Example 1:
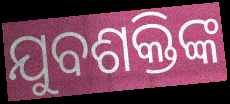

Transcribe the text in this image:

ଯୁବଶକ୍ତିଙ୍କ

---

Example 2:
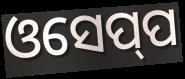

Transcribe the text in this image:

ଓସେପ୍‍ପ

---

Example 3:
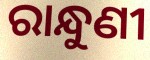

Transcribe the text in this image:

ରାନ୍ଧୁଣୀ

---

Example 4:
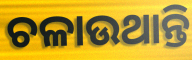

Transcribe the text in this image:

ଚଳାଉଥାନ୍ତି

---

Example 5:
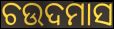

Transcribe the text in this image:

ଚଉଦମାସ